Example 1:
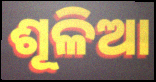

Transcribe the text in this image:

ଶୂଳିଆ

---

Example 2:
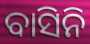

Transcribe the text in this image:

ବାସିନି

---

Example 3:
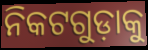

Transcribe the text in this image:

ନିକଟଗୁଡ଼ାକୁ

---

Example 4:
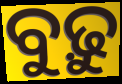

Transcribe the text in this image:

ବୁଢ଼ୁ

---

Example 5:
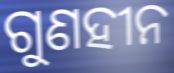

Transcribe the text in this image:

ଗୁଣହୀନ